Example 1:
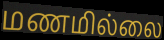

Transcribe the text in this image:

மணமில்லை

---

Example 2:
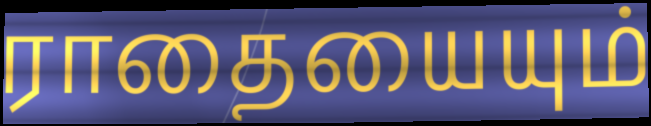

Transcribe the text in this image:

ராதையையும்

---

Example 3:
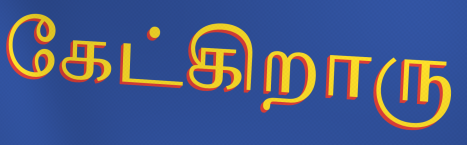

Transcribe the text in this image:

கேட்கிறாரு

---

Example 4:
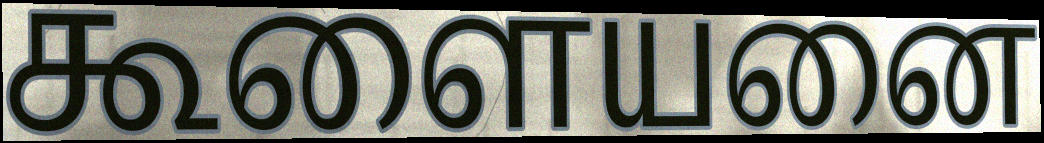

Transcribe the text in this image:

கூளையனை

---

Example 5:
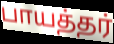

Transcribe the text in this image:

பாயத்தர்